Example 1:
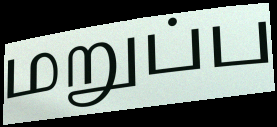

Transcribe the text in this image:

மறுப்ப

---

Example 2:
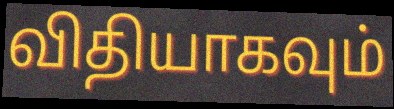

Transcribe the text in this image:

விதியாகவும்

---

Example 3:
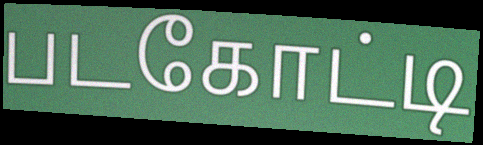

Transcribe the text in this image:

படகோட்டி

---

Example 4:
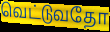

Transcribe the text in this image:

வெட்டுவதோ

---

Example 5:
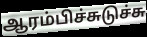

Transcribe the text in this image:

ஆரம்பிச்சுடுச்சு